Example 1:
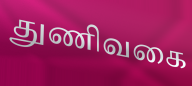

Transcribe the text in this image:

துணிவகை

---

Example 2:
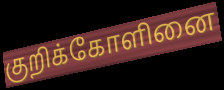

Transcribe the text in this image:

குறிக்கோளினை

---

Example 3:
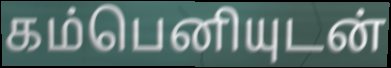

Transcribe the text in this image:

கம்பெனியுடன்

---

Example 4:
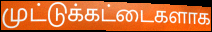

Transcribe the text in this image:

முட்டுக்கட்டைகளாக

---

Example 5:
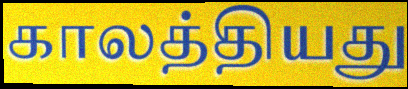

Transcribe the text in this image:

காலத்தியது